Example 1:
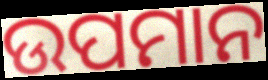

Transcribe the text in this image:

ଉପମାନ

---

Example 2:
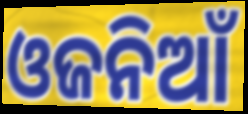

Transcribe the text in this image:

ଓଜନିଆଁ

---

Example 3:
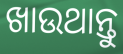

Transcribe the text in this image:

ଖାଉଥାନ୍ତୁ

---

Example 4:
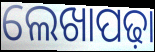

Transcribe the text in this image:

ଲେଖାପଢ଼ା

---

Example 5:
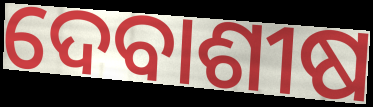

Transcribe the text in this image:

ଦେବାଶୀଷ